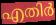
എതിർ